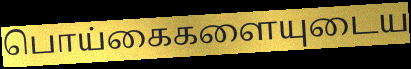
பொய்கைகளையுடைய